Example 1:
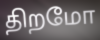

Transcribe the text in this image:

திறமோ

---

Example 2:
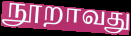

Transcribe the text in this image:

நூறாவது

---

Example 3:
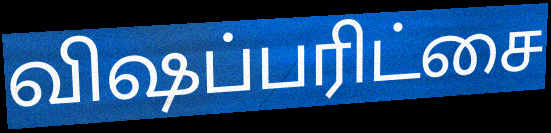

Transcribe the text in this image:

விஷப்பரிட்சை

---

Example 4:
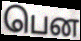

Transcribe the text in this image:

பென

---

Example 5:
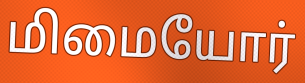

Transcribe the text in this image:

மிமையோர்